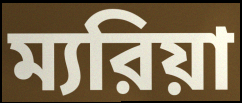
ম্যরিয়া